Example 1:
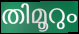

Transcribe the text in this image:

തിമൂറും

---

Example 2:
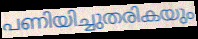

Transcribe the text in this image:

പണിയിച്ചുതരികയും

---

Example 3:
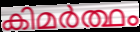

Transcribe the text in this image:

കിമർത്ഥം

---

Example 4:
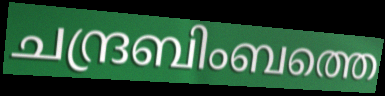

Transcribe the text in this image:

ചന്ദ്രബിംബത്തെ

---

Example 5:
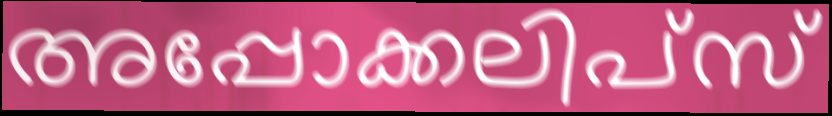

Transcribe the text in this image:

അപ്പോക്കലിപ്സ്